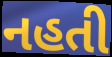
નહતી